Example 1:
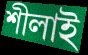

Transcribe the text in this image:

শীলাই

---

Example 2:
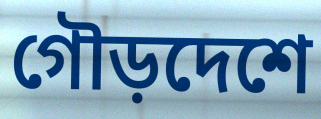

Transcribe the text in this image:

গৌড়দেশে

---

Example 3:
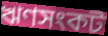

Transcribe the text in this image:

ঋণসংকট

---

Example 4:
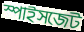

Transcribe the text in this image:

স্পাইসজেট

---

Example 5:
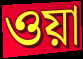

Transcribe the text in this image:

ওয়া